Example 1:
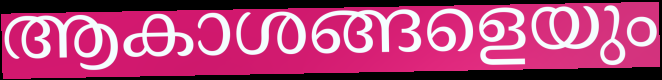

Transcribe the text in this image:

ആകാശങ്ങളെയും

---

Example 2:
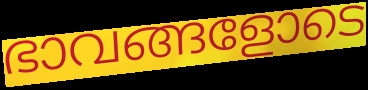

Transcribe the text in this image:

ഭാവങ്ങളോടെ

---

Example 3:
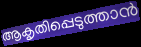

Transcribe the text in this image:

ആകൃതിപ്പെടുത്താൻ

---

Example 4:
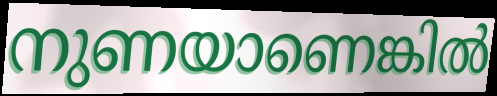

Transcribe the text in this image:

നുണയാണെങ്കിൽ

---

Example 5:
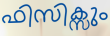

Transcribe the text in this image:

ഫിസിക്സും